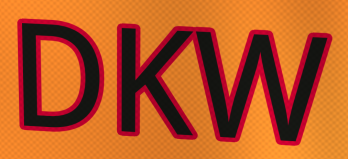
DKW